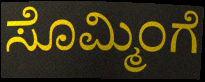
ಸೊಮ್ಮಿಂಗೆ